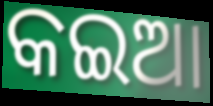
କଇଆ